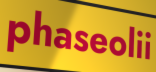
phaseolii